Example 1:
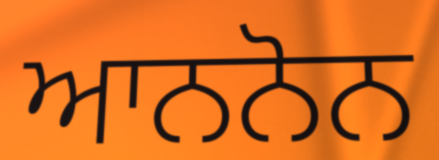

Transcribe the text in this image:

ਆਨਨੋਨ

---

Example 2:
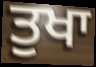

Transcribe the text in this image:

ਤੁਖਾ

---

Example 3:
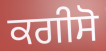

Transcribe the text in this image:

ਕਗੀਸੋ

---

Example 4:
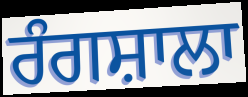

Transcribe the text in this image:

ਰੰਗਸ਼ਾਲਾ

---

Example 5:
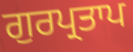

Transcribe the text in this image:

ਗੁਰਪ੍ਰਤਾਪ